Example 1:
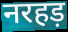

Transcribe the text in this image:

नरहड़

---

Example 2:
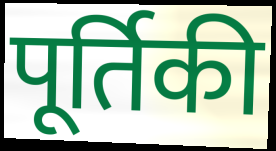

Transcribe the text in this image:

पूर्तिकी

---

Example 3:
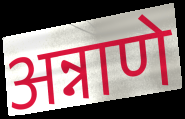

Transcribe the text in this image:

अन्नाणे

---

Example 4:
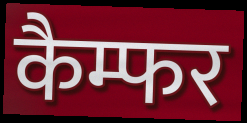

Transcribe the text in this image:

कैम्फर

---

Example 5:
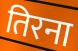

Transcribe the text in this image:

तिरना